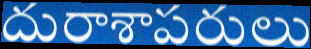
దురాశాపరులు